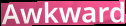
Awkward